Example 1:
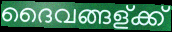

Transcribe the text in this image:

ദൈവങ്ങള്ക്ക്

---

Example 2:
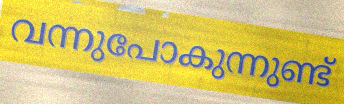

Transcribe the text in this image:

വന്നുപോകുന്നുണ്ട്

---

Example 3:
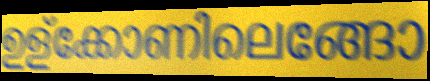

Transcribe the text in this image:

ഉള്ക്കോണിലെങ്ങോ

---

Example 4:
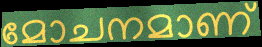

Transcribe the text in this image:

മോചനമാണ്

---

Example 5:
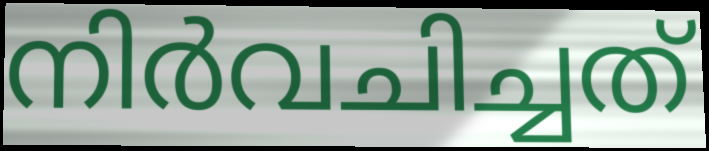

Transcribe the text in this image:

നിർവചിച്ചത്